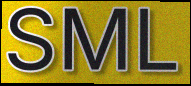
SML